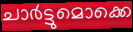
ചാർട്ടുമൊക്കെ